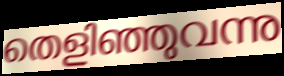
തെളിഞ്ഞുവന്നു